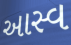
આસ્વ